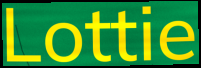
Lottie